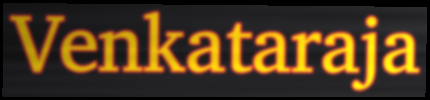
Venkataraja